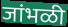
जांभळी